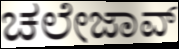
ಚಲೇಜಾವ್